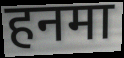
हनमा